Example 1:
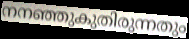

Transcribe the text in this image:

നനഞ്ഞുകുതിരുന്നതും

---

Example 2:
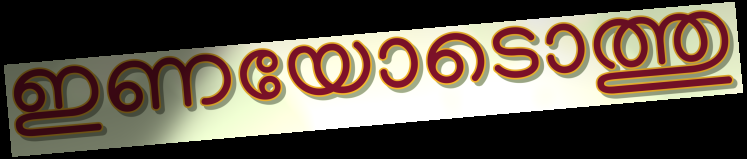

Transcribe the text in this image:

ഇണയോടൊത്തു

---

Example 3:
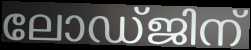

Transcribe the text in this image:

ലോഡ്ജിന്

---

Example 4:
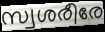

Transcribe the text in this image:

സ്വശരീരേ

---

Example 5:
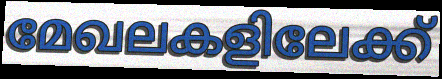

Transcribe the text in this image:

മേഖലകളിലേക്ക്